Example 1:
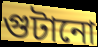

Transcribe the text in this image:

গুটানো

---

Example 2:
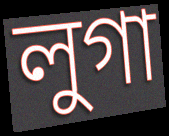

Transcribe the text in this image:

লুগা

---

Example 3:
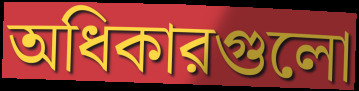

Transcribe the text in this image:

অধিকারগুলো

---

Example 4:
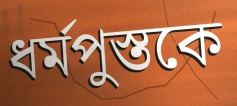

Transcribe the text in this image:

ধর্মপুস্তকে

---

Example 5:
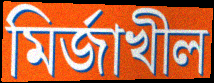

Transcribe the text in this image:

মির্জাখীল